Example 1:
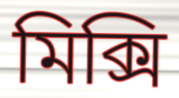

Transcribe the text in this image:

মিক্সি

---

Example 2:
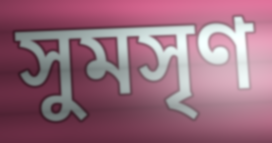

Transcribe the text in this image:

সুমসৃণ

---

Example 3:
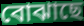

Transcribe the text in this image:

বোঝাছে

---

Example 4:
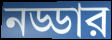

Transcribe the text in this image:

নড্ডার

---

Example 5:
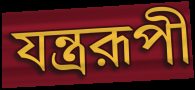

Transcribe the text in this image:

যন্ত্ররূপী